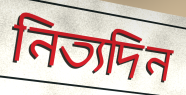
নিত্যদিন